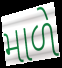
માળે